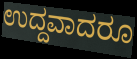
ಉದ್ದವಾದರೂ